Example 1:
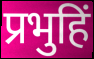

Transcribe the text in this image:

प्रभुहिं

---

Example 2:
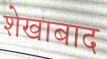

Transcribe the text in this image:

शेखाबाद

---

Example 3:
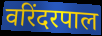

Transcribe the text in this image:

वरिंदरपाल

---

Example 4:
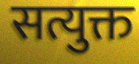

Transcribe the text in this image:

सत्युक्त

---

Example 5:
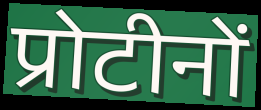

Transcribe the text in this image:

प्रोटीनों